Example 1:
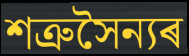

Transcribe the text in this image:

শত্ৰুসৈন্যৰ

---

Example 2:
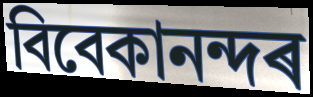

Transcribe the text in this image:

বিবেকানন্দৰ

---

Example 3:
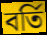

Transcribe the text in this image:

বৰ্তি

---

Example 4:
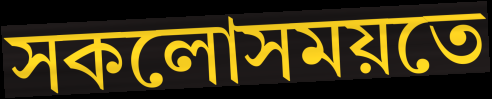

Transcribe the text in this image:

সকলোসময়তে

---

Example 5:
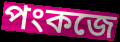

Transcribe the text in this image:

পংকজে